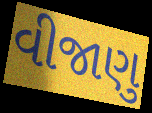
વીજાણુ